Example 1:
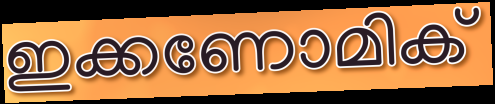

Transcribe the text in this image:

ഇക്കണോമിക്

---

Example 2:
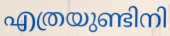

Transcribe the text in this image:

എത്രയുണ്ടിനി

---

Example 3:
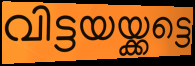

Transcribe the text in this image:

വിട്ടയയ്ക്കട്ടെ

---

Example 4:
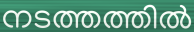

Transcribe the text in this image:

നടത്തത്തിൽ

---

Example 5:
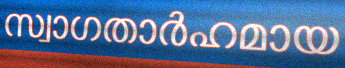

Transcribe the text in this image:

സ്വാഗതാർഹമായ